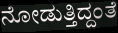
ನೋಡುತ್ತಿದ್ದಂತೆ